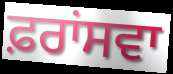
ਫ਼ਰਾਂਸਵਾ